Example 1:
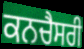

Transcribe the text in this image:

ਕਨਚੈਸਰੀ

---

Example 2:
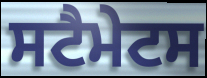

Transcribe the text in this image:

ਸਟੈਮੇਟਸ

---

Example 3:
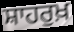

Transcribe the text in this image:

ਸ਼ਾਹਰੁਖ਼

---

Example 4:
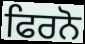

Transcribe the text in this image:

ਫਿਰਨੋ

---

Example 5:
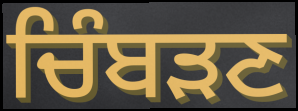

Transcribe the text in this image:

ਚਿੰਬੜਣ